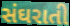
સંઘરાતી